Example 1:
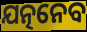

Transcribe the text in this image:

ଯତ୍ନନେବ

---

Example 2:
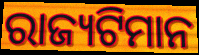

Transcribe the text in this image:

ରାଜ୍ୟଟିମାନ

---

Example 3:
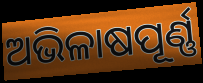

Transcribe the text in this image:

ଅଭିଳାଷପୂର୍ଣ୍ଣ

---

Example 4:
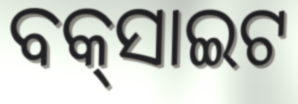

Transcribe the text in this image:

ବକ୍‌ସାଇଟ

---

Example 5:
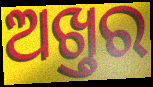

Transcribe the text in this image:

ଅଖ୍ତର